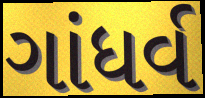
ગાંધર્વ